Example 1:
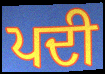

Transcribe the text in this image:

ਪਦੀ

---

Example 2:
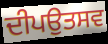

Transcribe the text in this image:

ਦੀਪਉਤਸਵ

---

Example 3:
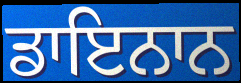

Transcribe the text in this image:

ਡਾਇਨਾਨ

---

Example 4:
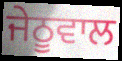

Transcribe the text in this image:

ਜੇਠੂਵਾਲ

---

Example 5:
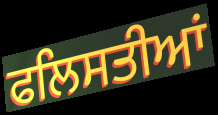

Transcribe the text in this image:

ਫਲਿਸਤੀਆਂ